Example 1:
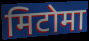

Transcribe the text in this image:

मिटोमा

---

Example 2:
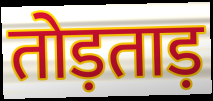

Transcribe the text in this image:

तोड़ताड़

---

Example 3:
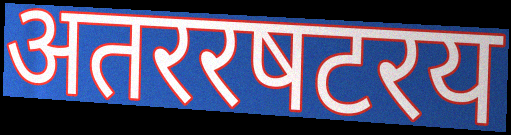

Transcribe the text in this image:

अतररषटरय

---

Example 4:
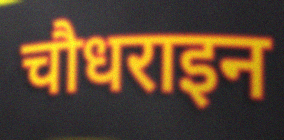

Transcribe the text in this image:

चौधराइन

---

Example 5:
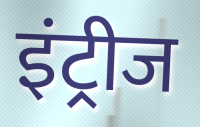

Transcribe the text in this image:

इंट्रीज